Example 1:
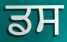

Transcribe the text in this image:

ਡਸ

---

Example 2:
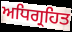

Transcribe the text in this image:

ਅਧਿਗ੍ਰਹਿਤ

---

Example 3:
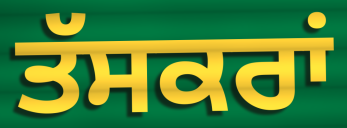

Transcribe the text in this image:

ਤੱਸਕਰਾਂ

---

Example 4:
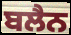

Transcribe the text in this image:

ਬਲੈਨ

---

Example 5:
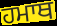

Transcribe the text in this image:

ਹਮਾਥ